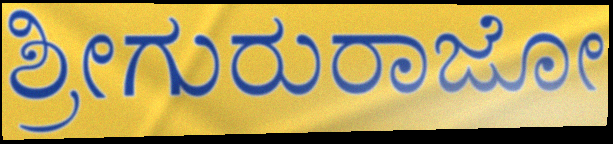
ಶ್ರೀಗುರುರಾಜೋ